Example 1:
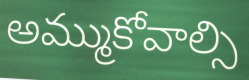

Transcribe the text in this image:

అమ్ముకోవాల్సి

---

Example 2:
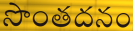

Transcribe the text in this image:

సొంతదనం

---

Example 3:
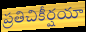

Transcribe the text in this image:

ప్రతిచికీర్షయా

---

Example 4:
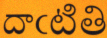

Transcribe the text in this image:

దాఁటితి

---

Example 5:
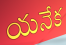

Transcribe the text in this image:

యనేక